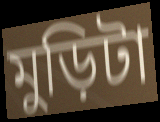
মুড়িটা